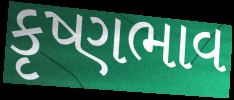
કૃષ્ણભાવ